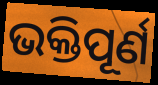
ଭକ୍ତିପୂର୍ଣ